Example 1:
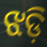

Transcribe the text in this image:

ଝଡ଼ି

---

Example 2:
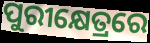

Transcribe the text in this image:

ପୁରୀକ୍ଷେତ୍ରରେ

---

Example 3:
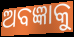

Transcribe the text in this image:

ଅବଜ୍ଞାକୁ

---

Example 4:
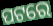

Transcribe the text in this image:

ପଟରେ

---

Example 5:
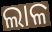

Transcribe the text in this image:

ଲାଳ